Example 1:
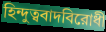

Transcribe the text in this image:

হিন্দুত্ববাদবিরোধী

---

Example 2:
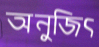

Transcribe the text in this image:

অনুজিৎ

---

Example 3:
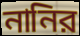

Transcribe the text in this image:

নানির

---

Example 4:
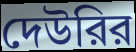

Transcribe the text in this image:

দেউরির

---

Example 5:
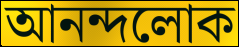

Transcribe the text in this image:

আনন্দলোক